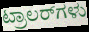
ಟ್ರಾಲರ್‌ಗಳು